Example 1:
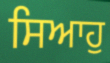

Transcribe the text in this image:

ਸਿਆਹੁ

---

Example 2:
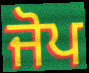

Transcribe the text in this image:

ਜੋਪ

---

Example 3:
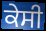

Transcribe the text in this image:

ਕੇਸੀ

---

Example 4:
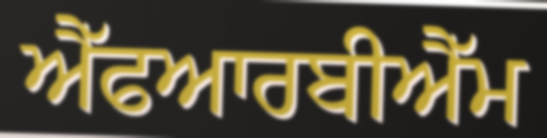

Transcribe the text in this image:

ਐੱਫਆਰਬੀਐੱਮ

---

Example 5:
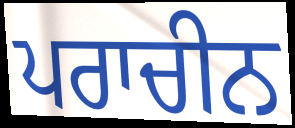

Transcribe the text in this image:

ਪਰਾਚੀਨ